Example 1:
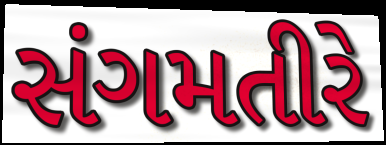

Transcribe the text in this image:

સંગમતીરે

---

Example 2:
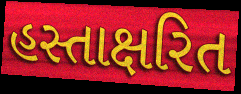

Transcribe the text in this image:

હસ્તાક્ષરિત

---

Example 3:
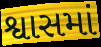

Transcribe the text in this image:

શ્વાસમાં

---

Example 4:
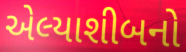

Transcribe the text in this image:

એલ્યાશીબનો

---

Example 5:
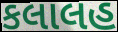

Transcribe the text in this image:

કલાલહ